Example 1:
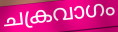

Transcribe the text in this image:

ചക്രവാഗം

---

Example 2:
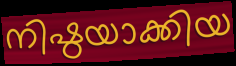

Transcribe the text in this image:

നിഷ്ഠയാക്കിയ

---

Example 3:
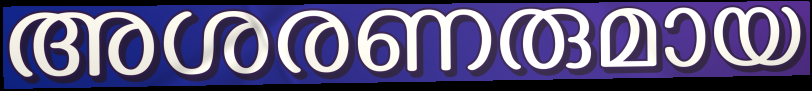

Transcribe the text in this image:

അശരണരുമായ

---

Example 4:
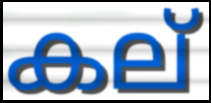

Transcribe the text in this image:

കല്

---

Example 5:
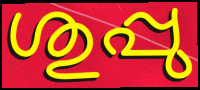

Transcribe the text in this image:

ശുപ്പു